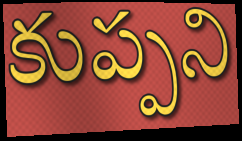
కుప్పని